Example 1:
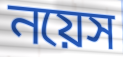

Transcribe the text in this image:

নয়েস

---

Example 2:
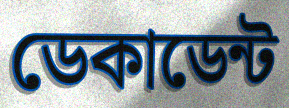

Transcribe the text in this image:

ডেকাডেন্ট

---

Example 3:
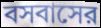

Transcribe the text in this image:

বসবাসের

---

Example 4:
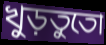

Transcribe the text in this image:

খুড়তুতো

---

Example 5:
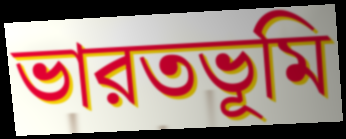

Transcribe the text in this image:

ভারতভূমি